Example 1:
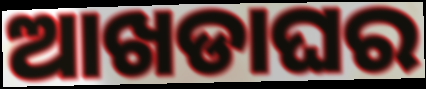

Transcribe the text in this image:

ଆଖଡାଘର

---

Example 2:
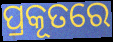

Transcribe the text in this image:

ପ୍ରକୂତରେ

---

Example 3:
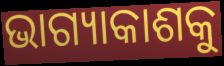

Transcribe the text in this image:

ଭାଗ୍ୟାକାଶକୁ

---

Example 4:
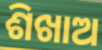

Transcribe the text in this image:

ଶିଖାଅ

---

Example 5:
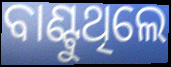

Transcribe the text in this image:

ବାଣ୍ଟୁଥିଲେ